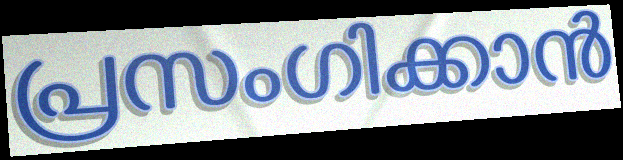
പ്രസംഗിക്കാൻ